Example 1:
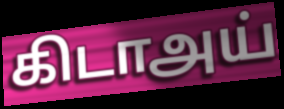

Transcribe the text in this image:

கிடாஅய்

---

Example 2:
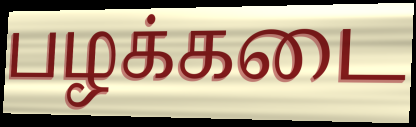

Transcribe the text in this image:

பழக்கடை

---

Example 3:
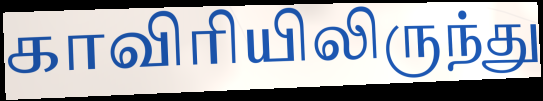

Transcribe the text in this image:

காவிரியிலிருந்து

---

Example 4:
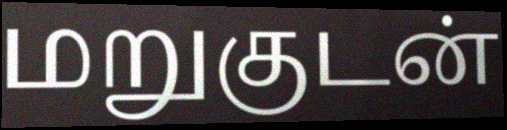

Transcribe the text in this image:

மறுகுடன்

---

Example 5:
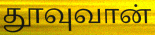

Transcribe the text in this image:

தூவுவான்